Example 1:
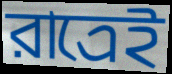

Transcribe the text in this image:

রাত্রেই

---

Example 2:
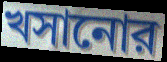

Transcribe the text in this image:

খসানোর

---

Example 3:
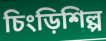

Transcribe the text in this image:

চিংড়িশিল্প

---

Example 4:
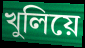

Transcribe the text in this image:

খুলিয়ে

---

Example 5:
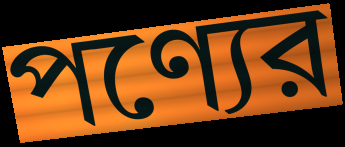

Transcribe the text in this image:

পণ্যের